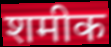
शमीक